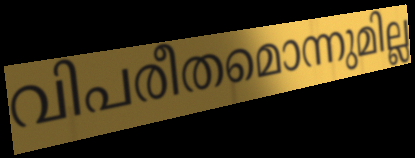
വിപരീതമൊന്നുമില്ല